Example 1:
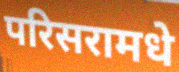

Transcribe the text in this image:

परिसरामधे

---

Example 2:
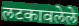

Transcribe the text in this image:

लटकावलेले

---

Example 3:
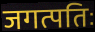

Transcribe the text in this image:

जगत्पतिः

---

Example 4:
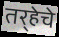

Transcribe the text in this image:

तर्‍हेचे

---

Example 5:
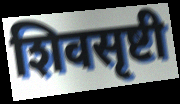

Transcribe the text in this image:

शिवसृष्टी